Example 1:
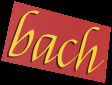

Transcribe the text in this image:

bach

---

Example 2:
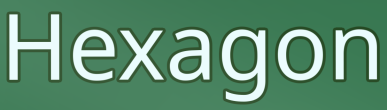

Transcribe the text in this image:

Hexagon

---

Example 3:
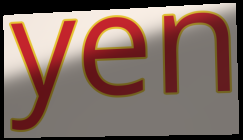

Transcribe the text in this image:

yen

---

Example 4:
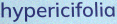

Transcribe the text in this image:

hypericifolia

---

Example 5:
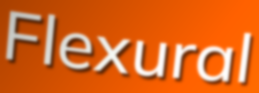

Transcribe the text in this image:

Flexural